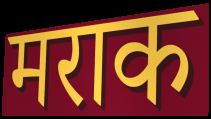
मराक